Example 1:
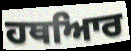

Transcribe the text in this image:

ਹਥਆਿਰ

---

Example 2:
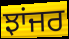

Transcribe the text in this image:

ਝਾਂਜਰ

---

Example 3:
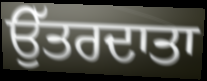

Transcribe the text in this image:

ਉੱਤਰਦਾਤਾ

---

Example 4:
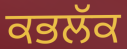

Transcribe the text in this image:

ਕਭਲੱਕ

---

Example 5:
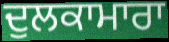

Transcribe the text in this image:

ਦੁਲਕਾਮਾਰਾ